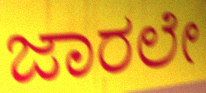
ಜಾರಲೇ